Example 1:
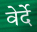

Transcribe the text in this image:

वेर्दे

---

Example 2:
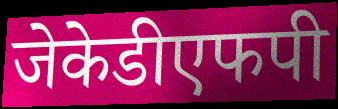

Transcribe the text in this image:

जेकेडीएफपी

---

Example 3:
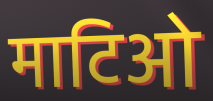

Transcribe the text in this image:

माटिओ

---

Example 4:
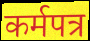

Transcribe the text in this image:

कर्मपत्र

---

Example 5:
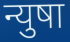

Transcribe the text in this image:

न्युषा